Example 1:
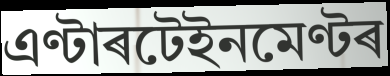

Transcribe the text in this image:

এণ্টাৰটেইনমেণ্টৰ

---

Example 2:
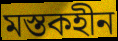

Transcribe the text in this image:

মস্তকহীন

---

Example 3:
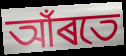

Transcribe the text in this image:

আঁৰতে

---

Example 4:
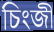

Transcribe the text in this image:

চিংজী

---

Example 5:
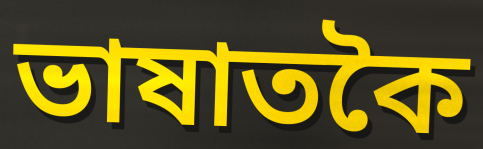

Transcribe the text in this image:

ভাষাতকৈ